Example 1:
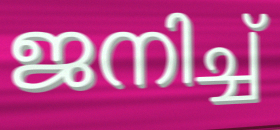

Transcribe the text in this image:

ജനിച്ച്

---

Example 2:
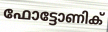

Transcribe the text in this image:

ഫോട്ടോണിക്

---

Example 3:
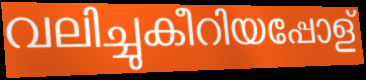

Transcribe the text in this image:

വലിച്ചുകീറിയപ്പോള്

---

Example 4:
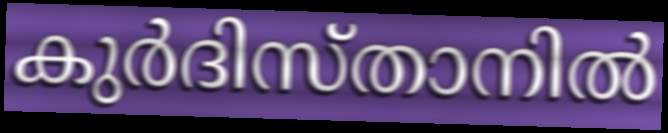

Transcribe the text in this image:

കുർദിസ്താനിൽ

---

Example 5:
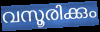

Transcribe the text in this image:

വസൂരിക്കും